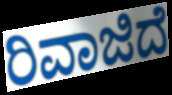
ರಿವಾಜಿದೆ